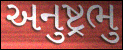
અનુષ્ટ્રભુ